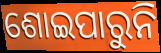
ଶୋଇପାରୁନି